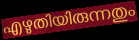
എഴുതിയിരുന്നതും